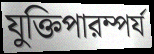
যুক্তিপারম্পর্য